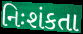
નિઃશંકતા